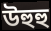
উহুহু